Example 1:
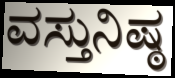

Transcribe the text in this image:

ವಸ್ತುನಿಷ್ಠ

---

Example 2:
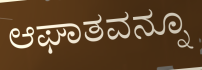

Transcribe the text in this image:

ಆಘಾತವನ್ನೂ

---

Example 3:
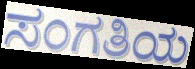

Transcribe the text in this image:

ಸಂಗತಿಯ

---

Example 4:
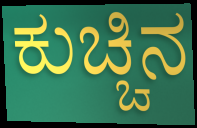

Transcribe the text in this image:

ಕುಚ್ಚಿನ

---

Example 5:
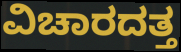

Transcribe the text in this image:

ವಿಚಾರದತ್ತ